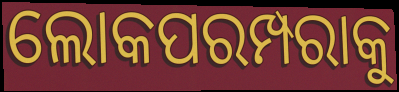
ଲୋକପରମ୍ପରାକୁ